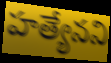
హత్యేనని